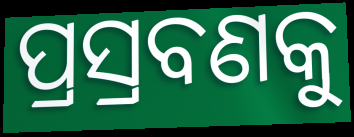
ପ୍ରସ୍ରବଣକୁ